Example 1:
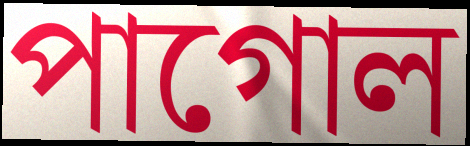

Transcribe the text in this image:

পাগোল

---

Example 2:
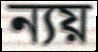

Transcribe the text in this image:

ন্যয়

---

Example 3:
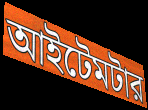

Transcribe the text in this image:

আইটেমটার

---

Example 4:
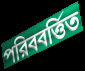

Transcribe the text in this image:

পরিববর্ত্তিত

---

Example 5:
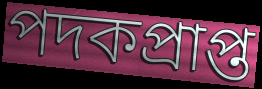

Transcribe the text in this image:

পদকপ্রাপ্ত